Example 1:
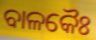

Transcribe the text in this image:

ବାଳକୈଃ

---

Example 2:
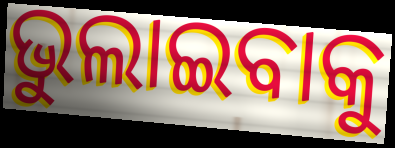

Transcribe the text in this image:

ଭୁଲାଇବାକୁ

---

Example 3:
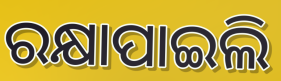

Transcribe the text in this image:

ରକ୍ଷାପାଇଲି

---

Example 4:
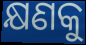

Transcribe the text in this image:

କ୍ଷଣକୁ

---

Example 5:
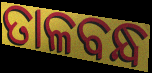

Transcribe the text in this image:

ତାଳବନ୍ଧ